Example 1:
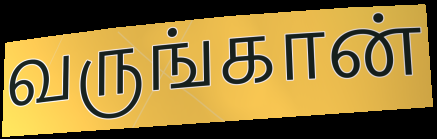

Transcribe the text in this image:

வருங்கான்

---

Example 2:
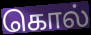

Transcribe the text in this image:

கொல்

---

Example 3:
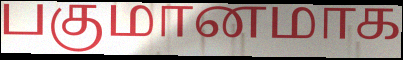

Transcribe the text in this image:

பகுமானமாக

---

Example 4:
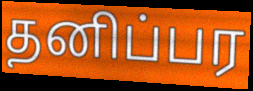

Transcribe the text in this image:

தனிப்பர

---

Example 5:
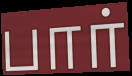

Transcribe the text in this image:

பார்